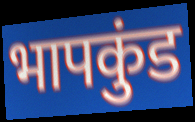
भापकुंड